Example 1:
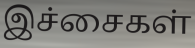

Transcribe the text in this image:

இச்சைகள்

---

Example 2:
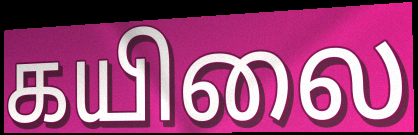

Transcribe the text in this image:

கயிலை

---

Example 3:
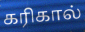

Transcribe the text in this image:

கரிகால்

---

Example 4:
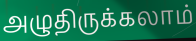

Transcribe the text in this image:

அழுதிருக்கலாம்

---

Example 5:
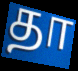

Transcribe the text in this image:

தா